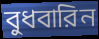
বুধবারিন